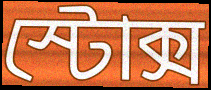
স্টোক্স